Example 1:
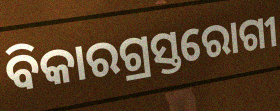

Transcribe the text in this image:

ବିକାରଗ୍ରସ୍ତରୋଗୀ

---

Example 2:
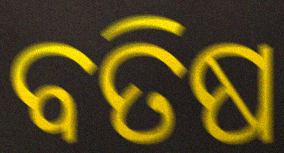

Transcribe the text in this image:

ବତିଷ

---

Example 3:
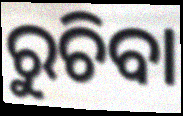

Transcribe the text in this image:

ରୁଚିବା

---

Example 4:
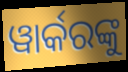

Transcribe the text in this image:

ୱାର୍କରଙ୍କୁ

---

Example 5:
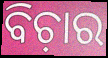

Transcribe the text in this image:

ବିଚ଼ାର